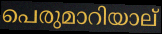
പെരുമാറിയാല്